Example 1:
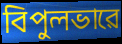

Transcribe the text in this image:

বিপুলভাৱে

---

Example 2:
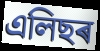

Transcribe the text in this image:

এলিছৰ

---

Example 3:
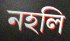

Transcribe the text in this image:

নহলি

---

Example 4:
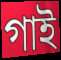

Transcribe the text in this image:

গাই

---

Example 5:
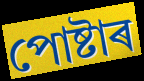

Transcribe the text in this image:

পোষ্টাৰ